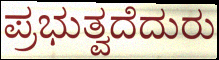
ಪ್ರಭುತ್ವದೆದುರು